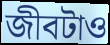
জীবটাও